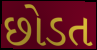
છોડત